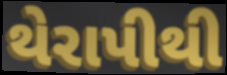
થેરાપીથી